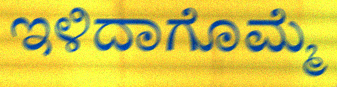
ಇಳಿದಾಗೊಮ್ಮೆ